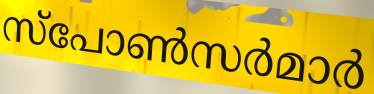
സ്പോൺസർമാർ